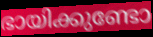
ഭായിക്കുണ്ടോ